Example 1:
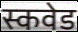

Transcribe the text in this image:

स्कवेड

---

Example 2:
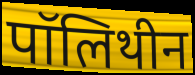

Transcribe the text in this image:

पॉलिथीन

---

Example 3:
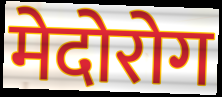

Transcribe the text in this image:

मेदोरोग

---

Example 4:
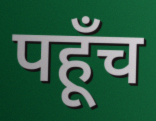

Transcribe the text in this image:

पहूँच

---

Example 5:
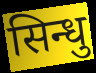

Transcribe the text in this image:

सिन्धु